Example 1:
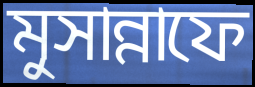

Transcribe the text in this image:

মুসান্নাফে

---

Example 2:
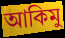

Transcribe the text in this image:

আকিমু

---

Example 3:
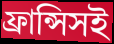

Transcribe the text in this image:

ফ্রান্সিসই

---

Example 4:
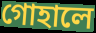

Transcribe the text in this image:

গোহালে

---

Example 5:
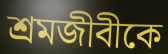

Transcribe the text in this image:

শ্রমজীবীকে